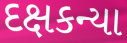
દક્ષકન્યા